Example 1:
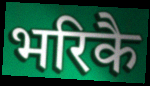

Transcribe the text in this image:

भरिकै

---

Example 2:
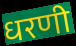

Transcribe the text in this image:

धरणी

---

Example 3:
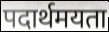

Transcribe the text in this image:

पदार्थमयता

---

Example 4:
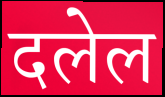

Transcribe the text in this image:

दलेल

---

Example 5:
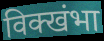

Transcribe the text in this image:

विक्खंभा